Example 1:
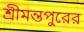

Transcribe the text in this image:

শ্রীমন্তপুরের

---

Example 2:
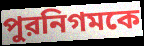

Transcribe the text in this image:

পুরনিগমকে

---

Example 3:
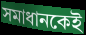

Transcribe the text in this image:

সমাধানকেই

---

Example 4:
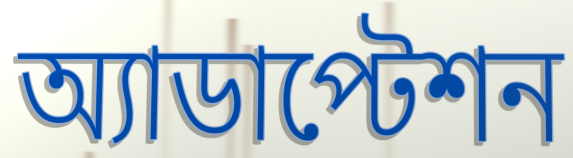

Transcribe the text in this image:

অ্যাডাপ্টেশন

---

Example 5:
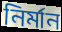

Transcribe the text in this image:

নির্মান